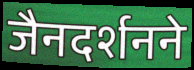
जैनदर्शनने